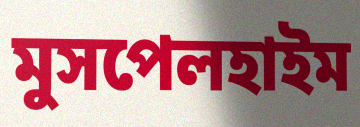
মুসপেলহাইম